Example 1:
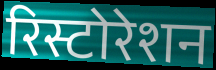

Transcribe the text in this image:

रिस्टोरेशन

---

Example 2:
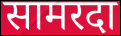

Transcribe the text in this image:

सामरदा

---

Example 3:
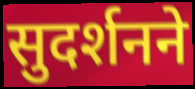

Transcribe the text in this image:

सुदर्शनने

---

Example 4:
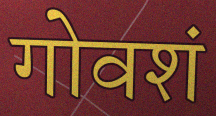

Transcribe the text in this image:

गोवशं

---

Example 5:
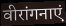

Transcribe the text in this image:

वीरांगनाएं